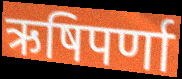
ऋषिपर्णा